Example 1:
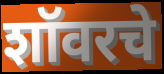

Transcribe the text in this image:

शॉवरचे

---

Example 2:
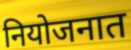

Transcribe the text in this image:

नियोजनात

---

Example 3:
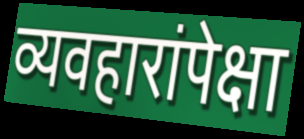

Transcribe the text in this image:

व्यवहारांपेक्षा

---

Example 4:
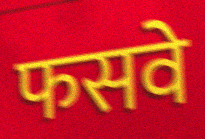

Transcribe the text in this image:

फसवे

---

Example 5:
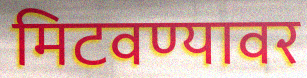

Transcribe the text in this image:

मिटवण्यावर